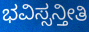
ಭವಿಸ್ಸನ್ತೀತಿ